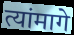
त्यांमागे